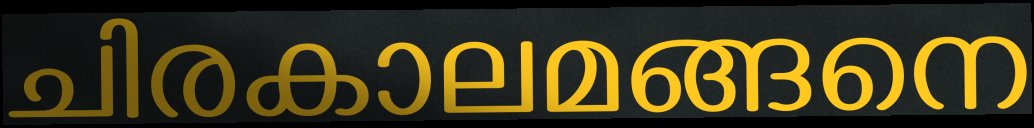
ചിരകാലമങ്ങനെ